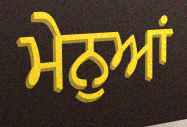
ਮੇਨੁਆਂ